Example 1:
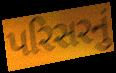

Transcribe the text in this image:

પરિસરનું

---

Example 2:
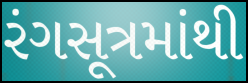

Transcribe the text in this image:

રંગસૂત્રમાંથી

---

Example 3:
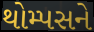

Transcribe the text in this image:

થોમ્પસને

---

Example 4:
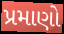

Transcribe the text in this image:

પ્રમાણો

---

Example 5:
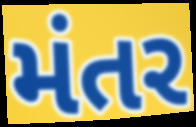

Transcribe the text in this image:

મંતર